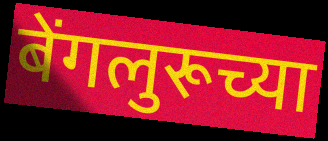
बेंगलुरूच्या